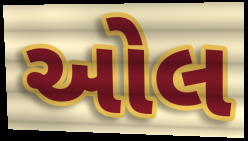
ઓલ